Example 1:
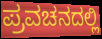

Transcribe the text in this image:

ಪ್ರವಚನದಲ್ಲಿ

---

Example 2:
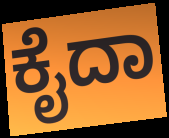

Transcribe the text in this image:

ಕೈದಾ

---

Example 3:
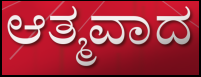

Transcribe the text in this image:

ಆತ್ಮವಾದ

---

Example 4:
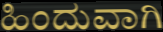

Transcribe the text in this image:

ಹಿಂದುವಾಗಿ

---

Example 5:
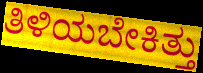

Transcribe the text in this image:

ತಿಳಿಯಬೇಕಿತ್ತು